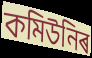
কমিউনিৰ